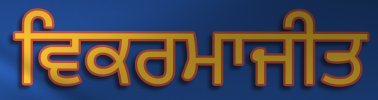
ਵਿਕਰਮਾਜੀਤ